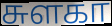
சுளகா